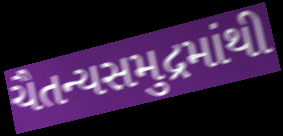
ચૈતન્યસમુદ્રમાંથી